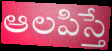
ఆలపిస్తే